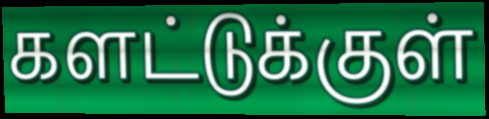
களட்டுக்குள்